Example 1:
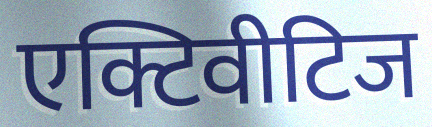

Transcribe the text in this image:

एक्टिवीटिज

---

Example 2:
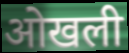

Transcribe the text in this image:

ओखली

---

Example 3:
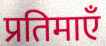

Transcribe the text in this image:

प्रतिमाएँ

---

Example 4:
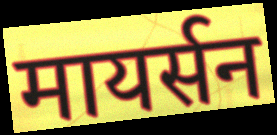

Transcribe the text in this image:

मायर्सन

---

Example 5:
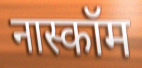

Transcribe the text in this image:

नास्कॉम